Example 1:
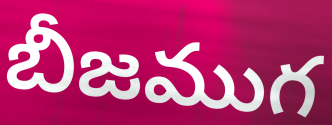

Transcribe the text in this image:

బీజముగ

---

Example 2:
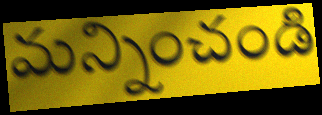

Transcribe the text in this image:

మన్నించండి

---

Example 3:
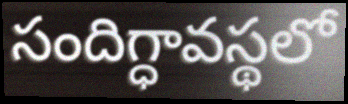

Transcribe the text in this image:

సందిగ్ధావస్థలో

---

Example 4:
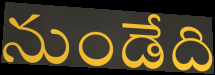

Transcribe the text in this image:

నుండేది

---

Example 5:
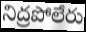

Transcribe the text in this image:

నిద్రపోలేరు